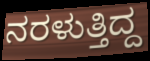
ನರಳುತ್ತಿದ್ದ